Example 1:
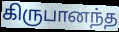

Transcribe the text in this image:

கிருபானந்த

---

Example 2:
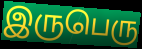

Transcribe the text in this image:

இருபெரு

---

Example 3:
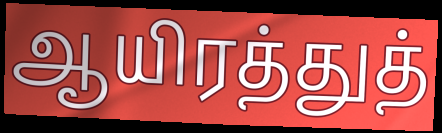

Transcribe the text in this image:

ஆயிரத்துத்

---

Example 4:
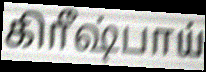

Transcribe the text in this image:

கிரீஷ்பாய்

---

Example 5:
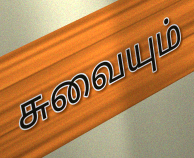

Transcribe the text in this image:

சுவையும்